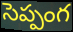
సెప్పంగ